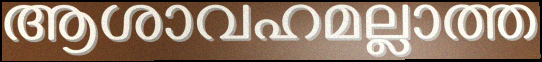
ആശാവഹമല്ലാത്ത